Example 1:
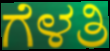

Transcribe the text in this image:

ಗೆಳತಿ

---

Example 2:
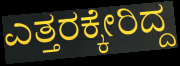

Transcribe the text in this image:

ಎತ್ತರಕ್ಕೇರಿದ್ದ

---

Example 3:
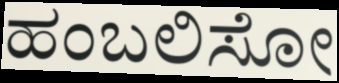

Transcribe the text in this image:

ಹಂಬಲಿಸೋ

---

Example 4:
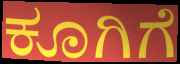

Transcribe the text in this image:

ಕೂಗಿಗೆ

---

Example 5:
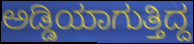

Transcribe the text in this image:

ಅಡ್ಡಿಯಾಗುತ್ತಿದ್ದ